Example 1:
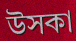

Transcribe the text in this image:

উসকা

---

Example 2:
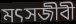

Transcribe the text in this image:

মৎসজীবী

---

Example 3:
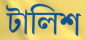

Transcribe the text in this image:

টালিশ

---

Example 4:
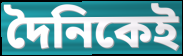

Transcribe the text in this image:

দৈনিকেই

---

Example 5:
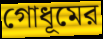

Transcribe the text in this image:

গোধূমের